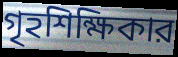
গৃহশিক্ষিকার